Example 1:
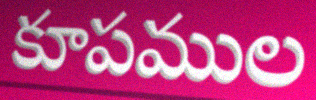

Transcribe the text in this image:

కూపముల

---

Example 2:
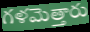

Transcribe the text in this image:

గళమెత్తారు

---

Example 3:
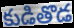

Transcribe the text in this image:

కుడితొడ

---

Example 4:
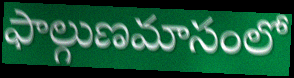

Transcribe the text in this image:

ఫాల్గుణమాసంలో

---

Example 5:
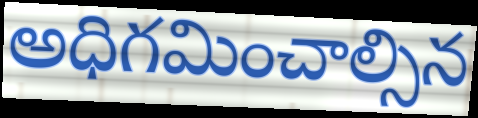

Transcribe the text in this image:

అధిగమించాల్సిన